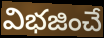
విభజించే